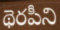
థెరపీని